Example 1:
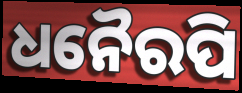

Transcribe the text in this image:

ଧନୈରପି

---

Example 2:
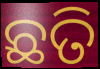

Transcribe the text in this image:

ଛତି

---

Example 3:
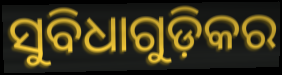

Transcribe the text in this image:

ସୁବିଧାଗୁଡ଼ିକର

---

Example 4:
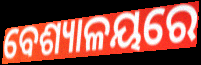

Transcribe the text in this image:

ବେଶ୍ୟାଳୟରେ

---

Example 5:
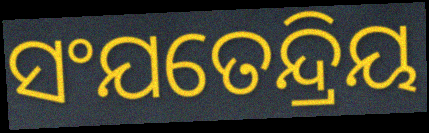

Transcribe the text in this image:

ସଂଯତେନ୍ଦ୍ରିୟ